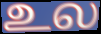
உல